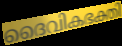
ദൈവികഭക്തി